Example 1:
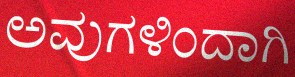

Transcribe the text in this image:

ಅವುಗಳಿಂದಾಗಿ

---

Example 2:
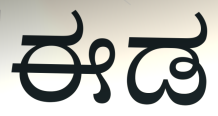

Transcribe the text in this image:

ಈಡ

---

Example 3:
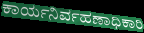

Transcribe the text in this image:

ಕಾರ್ಯನಿರ್ವಹಣಾಧಿಕಾರಿ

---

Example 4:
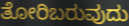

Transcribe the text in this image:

ತೋರಿಬರುವುದು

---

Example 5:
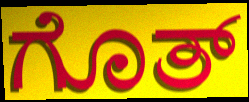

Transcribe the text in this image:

ಗೊತ್